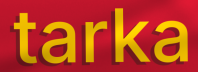
tarka